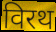
विरथ